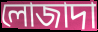
লোজাদা